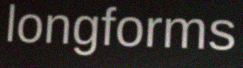
longforms